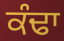
ਕੰਢਾ